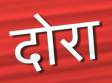
दोरा